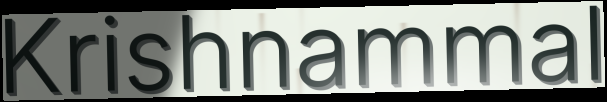
Krishnammal